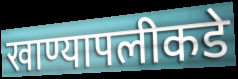
खाण्यापलीकडे